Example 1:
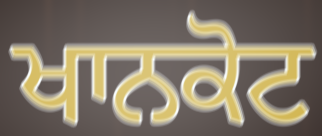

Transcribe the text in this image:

ਖਾਨਕੋਟ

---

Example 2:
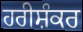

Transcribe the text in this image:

ਹਰੀਸ਼ੰਕਰ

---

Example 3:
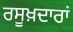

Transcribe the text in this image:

ਰਸੂਖ਼ਦਾਰਾਂ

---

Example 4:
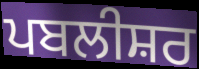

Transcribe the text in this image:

ਪਬਲੀਸ਼ਰ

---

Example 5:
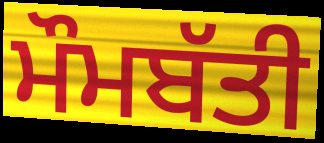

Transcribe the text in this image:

ਮੌਮਬੱਤੀ